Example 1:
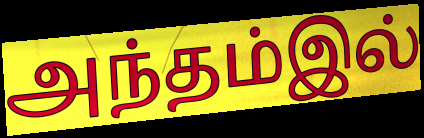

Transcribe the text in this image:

அந்தம்இல்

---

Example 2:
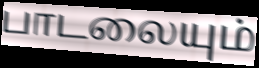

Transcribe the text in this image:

பாடலையும்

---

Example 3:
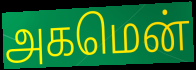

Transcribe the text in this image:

அகமென்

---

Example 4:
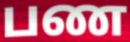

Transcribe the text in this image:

பண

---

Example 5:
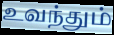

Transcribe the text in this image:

உவந்தும்